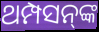
ଥମ୍ପସନ୍‌ଙ୍କ